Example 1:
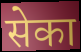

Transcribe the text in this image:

सेका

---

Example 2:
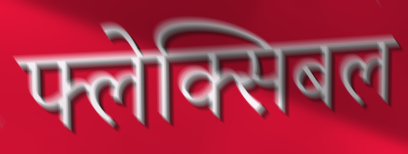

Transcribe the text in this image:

फ्लेक्सिबल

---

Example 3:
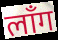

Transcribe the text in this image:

लाँग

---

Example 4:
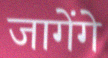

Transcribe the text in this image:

जागेंगे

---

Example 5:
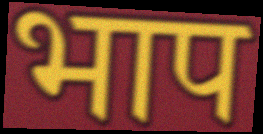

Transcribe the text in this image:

भाप